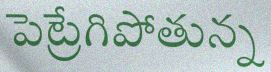
పెట్రేగిపోతున్న